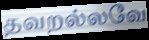
தவறல்லவே